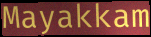
Mayakkam